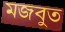
মজবুত